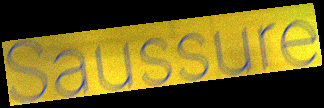
Saussure